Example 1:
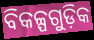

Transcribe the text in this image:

ବିକଳ୍ପଗୁଡ଼ିକ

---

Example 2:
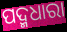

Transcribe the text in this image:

ପଦ୍ମଧାରା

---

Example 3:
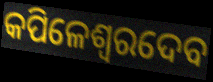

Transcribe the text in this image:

କପିଳେଶ୍ୱରଦେବ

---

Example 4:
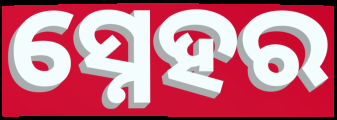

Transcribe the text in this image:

ସ୍ନେହର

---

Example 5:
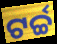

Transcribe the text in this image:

ଟର୍ଚ୍ଚ